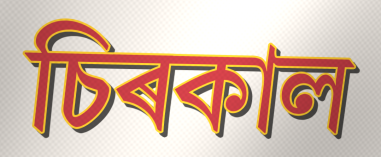
চিৰকাল